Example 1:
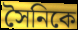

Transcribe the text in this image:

সৈনিকে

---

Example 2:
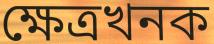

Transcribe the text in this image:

ক্ষেত্ৰখনক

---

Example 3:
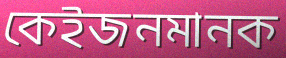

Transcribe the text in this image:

কেইজনমানক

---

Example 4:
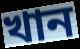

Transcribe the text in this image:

খান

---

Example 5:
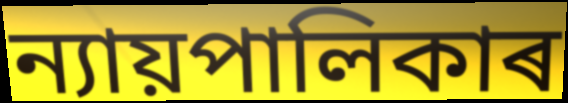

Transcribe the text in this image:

ন্যায়পালিকাৰ